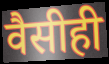
वैसीही